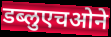
डब्लुएचओने